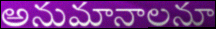
అనుమానాలనూ